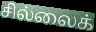
சில்லைக்